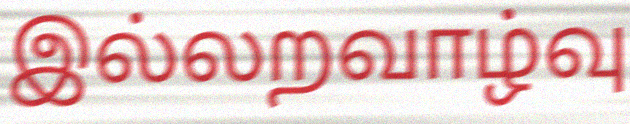
இல்லறவாழ்வு